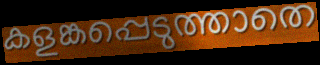
കളങ്കപ്പെടുത്താതെ